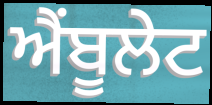
ਐਂਬੂਲੇਟ